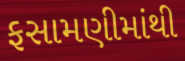
ફસામણીમાંથી